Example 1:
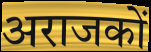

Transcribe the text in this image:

अराजकों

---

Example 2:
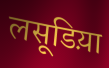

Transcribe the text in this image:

लसूडिय़ा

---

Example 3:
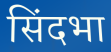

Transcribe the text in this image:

सिंदभा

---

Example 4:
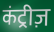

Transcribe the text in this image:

कंट्रीज़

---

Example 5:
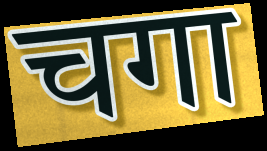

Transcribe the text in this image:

चगा